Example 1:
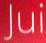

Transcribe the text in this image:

Jui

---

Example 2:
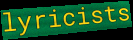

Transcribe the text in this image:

lyricists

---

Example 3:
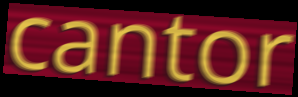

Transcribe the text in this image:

cantor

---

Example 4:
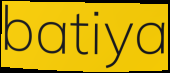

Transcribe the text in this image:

batiya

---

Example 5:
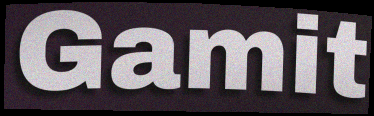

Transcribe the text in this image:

Gamit